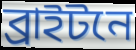
ব্রাইটনে